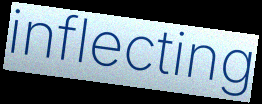
inflecting